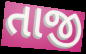
તાજી